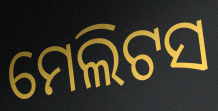
ମେଲିଟସ